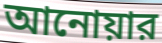
আনোয়ার